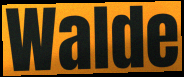
Walde